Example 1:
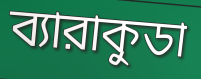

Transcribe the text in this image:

ব্যারাকুডা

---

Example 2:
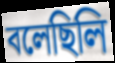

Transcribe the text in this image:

বলেছিলি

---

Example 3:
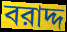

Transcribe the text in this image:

বরাদ্দ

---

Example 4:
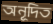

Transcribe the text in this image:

অনূদিত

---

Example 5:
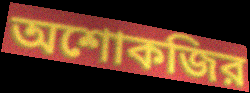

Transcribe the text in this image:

অশোকজির